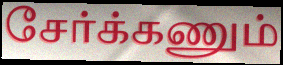
சேர்க்கணும்